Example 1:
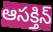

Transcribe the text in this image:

ఆసక్తిన్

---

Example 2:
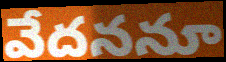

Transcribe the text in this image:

వేదననూ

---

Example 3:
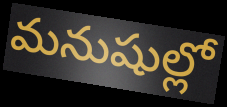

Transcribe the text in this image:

మనుషుల్లో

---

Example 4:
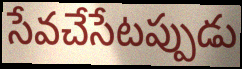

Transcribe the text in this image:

సేవచేసేటప్పుడు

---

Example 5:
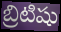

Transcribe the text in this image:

బ్రిటిషు